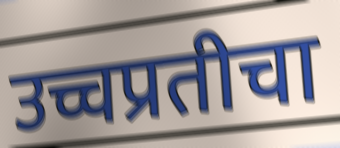
उच्चप्रतीचा